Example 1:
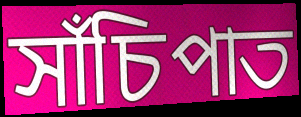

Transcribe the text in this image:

সাঁচিপাত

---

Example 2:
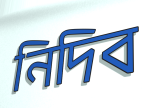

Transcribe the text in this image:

নিদিব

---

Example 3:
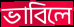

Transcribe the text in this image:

ভাবিলে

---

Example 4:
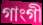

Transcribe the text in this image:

গাংগী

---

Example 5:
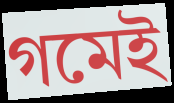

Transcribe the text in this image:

গমেই